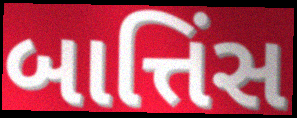
બાત્તિંસ